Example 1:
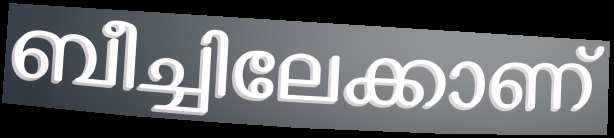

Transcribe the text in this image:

ബീച്ചിലേക്കാണ്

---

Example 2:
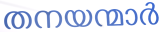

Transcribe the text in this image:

തനയന്മാർ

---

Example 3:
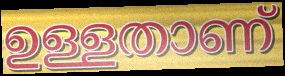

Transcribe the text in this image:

ഉള്ളതാണ്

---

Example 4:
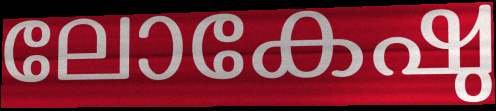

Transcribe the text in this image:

ലോകേഷു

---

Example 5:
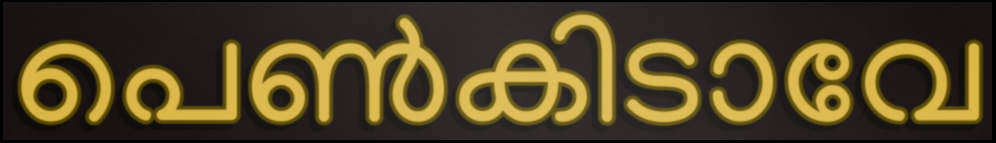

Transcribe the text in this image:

പെൺകിടാവേ